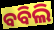
ବବିଲି